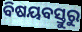
ବିଷୟବସ୍ତୁରୁ